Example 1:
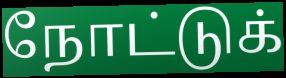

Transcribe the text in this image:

நோட்டுக்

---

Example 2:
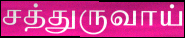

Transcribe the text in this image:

சத்துருவாய்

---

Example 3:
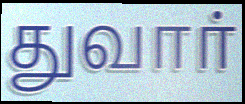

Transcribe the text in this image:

துவார்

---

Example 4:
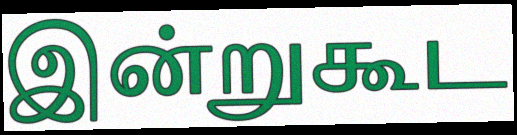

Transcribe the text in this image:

இன்றுகூட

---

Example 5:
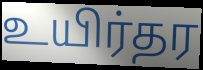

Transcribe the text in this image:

உயிர்தர